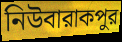
নিউবারাকপুর